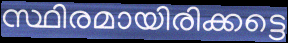
സ്ഥിരമായിരിക്കട്ടെ